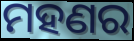
ମହଣର